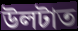
উলটাত